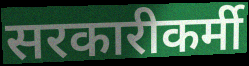
सरकारीकर्मी